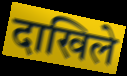
दाखिले